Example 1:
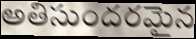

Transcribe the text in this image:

అతిసుందరమైన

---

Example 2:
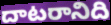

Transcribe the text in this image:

దాటరానిది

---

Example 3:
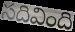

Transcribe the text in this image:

సదివింది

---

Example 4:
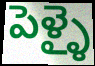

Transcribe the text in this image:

పెళ్ళై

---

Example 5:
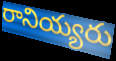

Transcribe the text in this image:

రానియ్యరు